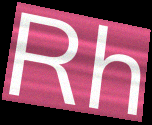
Rh